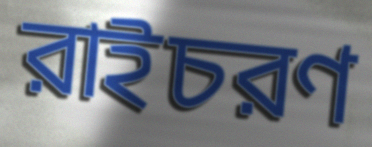
রাইচরণ